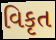
વિકૃત